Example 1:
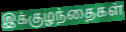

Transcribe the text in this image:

இக்குழந்தைகள்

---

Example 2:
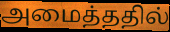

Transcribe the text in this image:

அமைத்ததில்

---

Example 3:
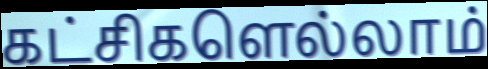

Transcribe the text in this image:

கட்சிகளெல்லாம்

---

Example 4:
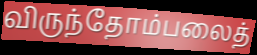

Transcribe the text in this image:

விருந்தோம்பலைத்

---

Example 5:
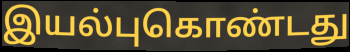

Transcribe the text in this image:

இயல்புகொண்டது